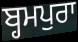
ਬ੍ਹਮਪੁਰਾ